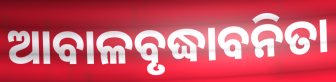
ଆବାଳବୃଦ୍ଧାବନିତା